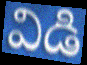
విడి